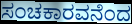
ಸಂಚಕಾರವನೆಂದ